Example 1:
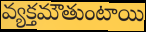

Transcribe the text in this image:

వ్యక్తమౌతుంటాయి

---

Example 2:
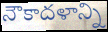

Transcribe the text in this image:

నౌకాదళాన్ని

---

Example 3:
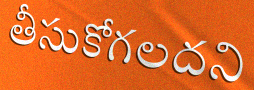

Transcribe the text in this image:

తీసుకోగలదని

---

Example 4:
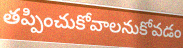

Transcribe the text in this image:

తప్పించుకోవాలనుకోవడం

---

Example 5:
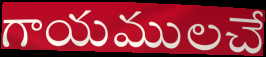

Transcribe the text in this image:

గాయములచే